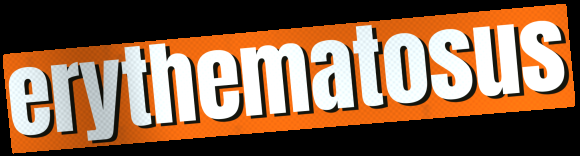
erythematosus